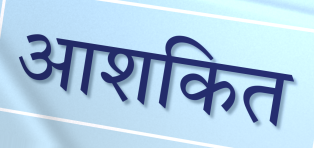
आशकित